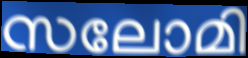
സലോമി